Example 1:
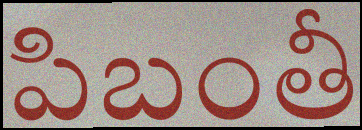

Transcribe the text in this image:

పిబంతీ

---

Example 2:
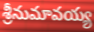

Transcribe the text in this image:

శ్రీనుమావయ్య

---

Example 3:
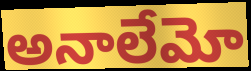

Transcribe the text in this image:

అనాలేమో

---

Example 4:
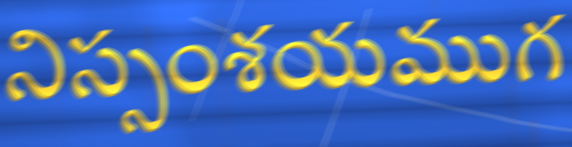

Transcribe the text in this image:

నిస్సంశయముగ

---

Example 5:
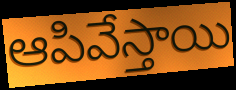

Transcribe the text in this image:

ఆపివేస్తాయి